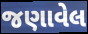
જણાવેલ